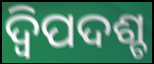
ଦ୍ବିପଦଶ୍ଚ